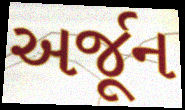
અર્જૂન